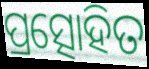
ପ୍ରତ୍ସୋହିତ